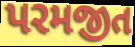
પરમજીત